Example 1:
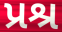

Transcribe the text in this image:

પ્રશ્ર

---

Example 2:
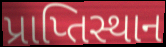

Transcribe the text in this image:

પ્રાપ્તિસ્થાન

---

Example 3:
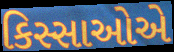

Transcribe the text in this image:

કિસ્સાઓએ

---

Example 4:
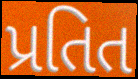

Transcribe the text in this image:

પ્રતિત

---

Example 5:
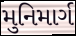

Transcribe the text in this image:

મુનિમાર્ગ